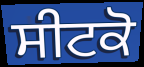
ਸੀਟਕੋ